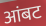
आंबट